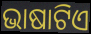
ଭାଷାଟିଏ